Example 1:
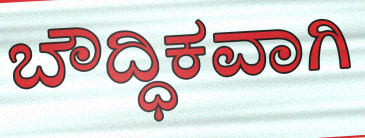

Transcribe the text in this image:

ಬೌದ್ಧಿಕವಾಗಿ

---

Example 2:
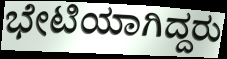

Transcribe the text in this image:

ಭೇಟಿಯಾಗಿದ್ದರು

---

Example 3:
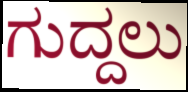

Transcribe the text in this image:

ಗುದ್ದಲು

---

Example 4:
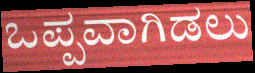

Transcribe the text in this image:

ಒಪ್ಪವಾಗಿಡಲು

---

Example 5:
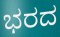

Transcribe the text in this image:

ಭರದ